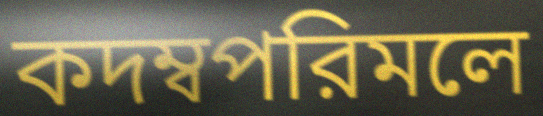
কদম্বপরিমলে